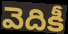
వెదికీ